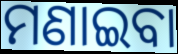
ମଣାଇବା